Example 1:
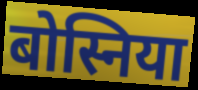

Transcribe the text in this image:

बोस्निया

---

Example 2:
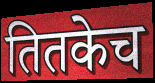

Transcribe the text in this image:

तितकेच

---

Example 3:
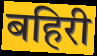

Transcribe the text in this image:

बहिरी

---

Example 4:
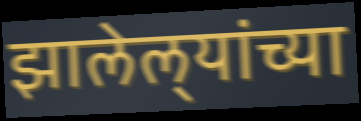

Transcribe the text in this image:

झालेल्यांच्या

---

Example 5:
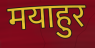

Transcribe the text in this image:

मयाहुर